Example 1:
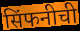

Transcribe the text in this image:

सिंफनीची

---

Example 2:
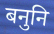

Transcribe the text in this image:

बनुनि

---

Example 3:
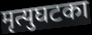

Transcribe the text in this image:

मृत्युघटका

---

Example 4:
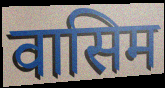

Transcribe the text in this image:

वासिम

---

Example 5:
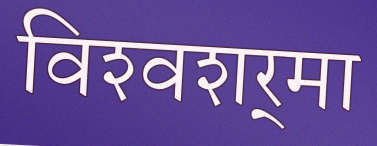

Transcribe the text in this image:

विश्वशर्मा